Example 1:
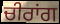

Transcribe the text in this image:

ਚੀਰਾਂਗ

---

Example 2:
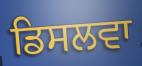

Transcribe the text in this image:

ਡਿਸਲਵਾ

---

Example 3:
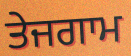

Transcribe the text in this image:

ਤੇਜਗਾਮ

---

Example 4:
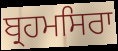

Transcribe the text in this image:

ਬ੍ਰਹਮਸਿਰਾ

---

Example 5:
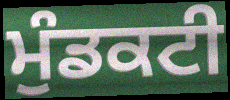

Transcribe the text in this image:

ਮੁੰਡਕਟੀ